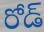
రోడ్